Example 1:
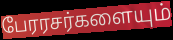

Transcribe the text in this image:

பேரரசர்களையும்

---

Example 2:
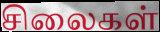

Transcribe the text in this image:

சிலைகள்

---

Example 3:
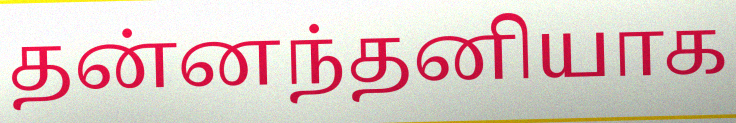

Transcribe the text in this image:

தன்னந்தனியாக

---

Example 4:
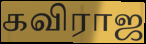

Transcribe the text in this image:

கவிராஜ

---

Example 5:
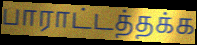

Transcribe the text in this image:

பாராட்டத்தக்க